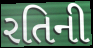
રતિની